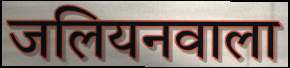
जलियनवाला